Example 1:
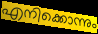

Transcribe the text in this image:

എനിക്കൊന്നും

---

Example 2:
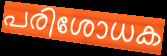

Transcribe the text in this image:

പരിശോധക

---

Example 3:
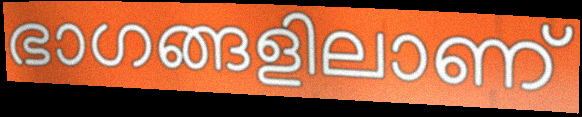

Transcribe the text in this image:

ഭാഗങ്ങളിലാണ്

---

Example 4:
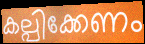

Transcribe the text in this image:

കല്പിക്കേണം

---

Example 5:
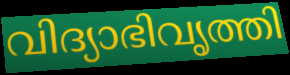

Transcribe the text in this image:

വിദ്യാഭിവൃത്തി